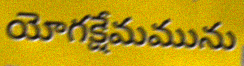
యోగక్షేమమును